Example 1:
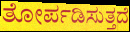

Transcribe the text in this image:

ತೋರ್ಪಡಿಸುತ್ತದೆ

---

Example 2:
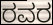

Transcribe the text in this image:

ರವರ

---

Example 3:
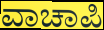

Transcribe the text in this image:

ವಾಚಾಪಿ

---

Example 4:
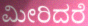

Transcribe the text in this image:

ಮೀರಿದರೆ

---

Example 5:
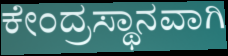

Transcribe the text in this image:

ಕೇಂದ್ರಸ್ಥಾನವಾಗಿ